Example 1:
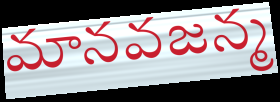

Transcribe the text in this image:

మానవజన్మ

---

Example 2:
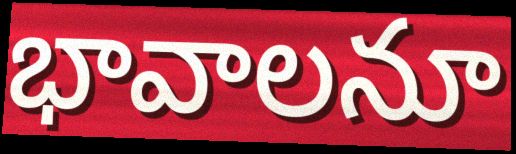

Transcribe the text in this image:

భావాలనూ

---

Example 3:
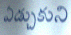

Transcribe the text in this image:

ఏడ్చుకుని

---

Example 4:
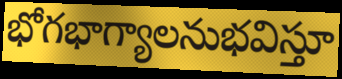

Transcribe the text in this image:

భోగభాగ్యాలనుభవిస్తూ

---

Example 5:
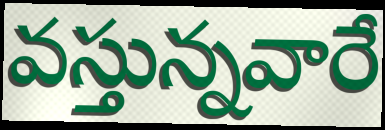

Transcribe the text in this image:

వస్తున్నవారే